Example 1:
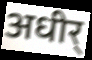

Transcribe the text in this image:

अधीर्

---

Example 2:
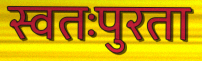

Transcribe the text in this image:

स्वतःपुरता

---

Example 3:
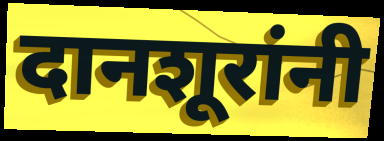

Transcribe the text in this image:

दानशूरांनी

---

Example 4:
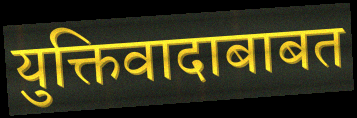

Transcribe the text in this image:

युक्तिवादाबाबत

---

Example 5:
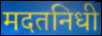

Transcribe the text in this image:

मदतनिधी